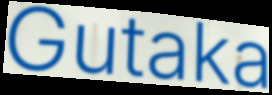
Gutaka